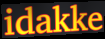
idakke